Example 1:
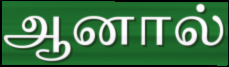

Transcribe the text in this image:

ஆனால்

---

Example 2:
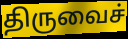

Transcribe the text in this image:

திருவைச்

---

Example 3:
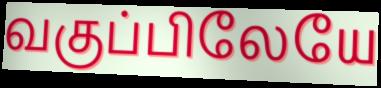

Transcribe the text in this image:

வகுப்பிலேயே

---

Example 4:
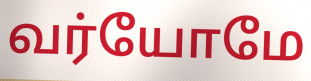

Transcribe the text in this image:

வர்யோமே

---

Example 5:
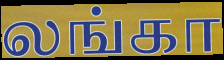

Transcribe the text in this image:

லங்கா